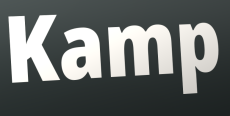
Kamp